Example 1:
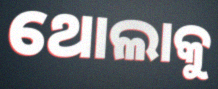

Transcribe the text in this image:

ଥୋଲାକୁ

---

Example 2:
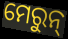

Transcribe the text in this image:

ମେରୁନ୍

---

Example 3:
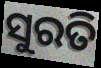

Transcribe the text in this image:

ସୁରତି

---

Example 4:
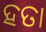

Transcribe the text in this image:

ହତା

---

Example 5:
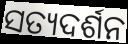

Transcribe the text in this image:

ସତ୍ୟଦର୍ଶନ